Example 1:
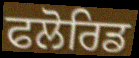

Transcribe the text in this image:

ਫਲੋਰਿਡ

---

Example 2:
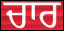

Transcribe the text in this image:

ਚਾਰ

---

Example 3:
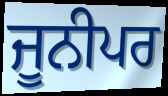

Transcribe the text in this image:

ਜੂਨੀਪਰ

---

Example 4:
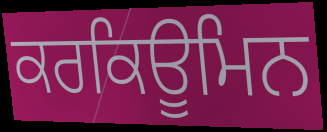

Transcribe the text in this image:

ਕਰਕਿਊਮਿਨ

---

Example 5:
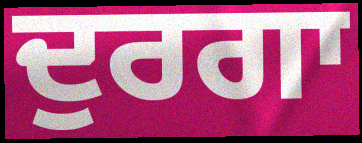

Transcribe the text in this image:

ਦੁਰਗਾ